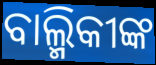
ବାଲ୍ମିକୀଙ୍କ